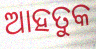
ଆହତୁକ